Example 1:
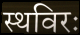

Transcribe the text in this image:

स्थविरः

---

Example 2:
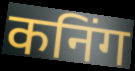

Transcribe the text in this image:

कनिंग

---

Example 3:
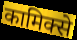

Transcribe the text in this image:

कामिक्से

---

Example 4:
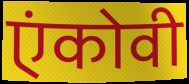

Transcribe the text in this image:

एंकोवी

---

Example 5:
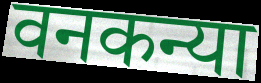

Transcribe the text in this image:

वनकन्या